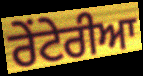
ਰੇਂਟੇਰੀਆ